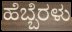
ಹೆಬ್ಬೆರಳು